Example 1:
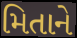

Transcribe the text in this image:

મિતાને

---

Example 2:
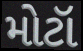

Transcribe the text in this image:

મોટૉ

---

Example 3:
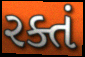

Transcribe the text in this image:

રક્તં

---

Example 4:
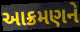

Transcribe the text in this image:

આક્રમણને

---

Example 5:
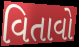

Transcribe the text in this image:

વિતાવો